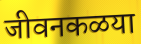
जीवनकळया